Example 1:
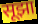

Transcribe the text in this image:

सूझा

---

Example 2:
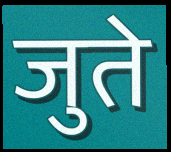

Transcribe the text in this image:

जुते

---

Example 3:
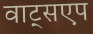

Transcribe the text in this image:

वाट्सएप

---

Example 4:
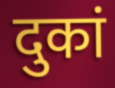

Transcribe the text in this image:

दुकां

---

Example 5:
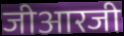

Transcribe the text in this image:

जीआरजी